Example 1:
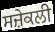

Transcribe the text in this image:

ਸਜ਼ੇਕਲੀ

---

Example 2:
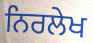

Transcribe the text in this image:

ਨਿਰਲੇਖ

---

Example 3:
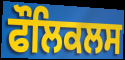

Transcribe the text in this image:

ਫੌਲਿਕਲਸ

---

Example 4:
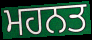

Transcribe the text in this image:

ਮਹਨਤ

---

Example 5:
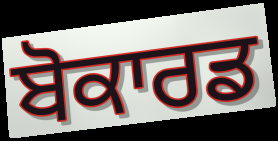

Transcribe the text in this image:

ਬੋਕਾਰਡ